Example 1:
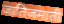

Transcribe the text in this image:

जातिजमाती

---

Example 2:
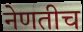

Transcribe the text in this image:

नेणतीच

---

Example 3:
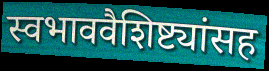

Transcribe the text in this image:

स्वभाववैशिष्ट्यांसह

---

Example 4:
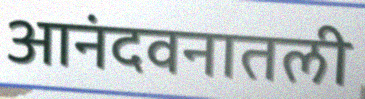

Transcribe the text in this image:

आनंदवनातली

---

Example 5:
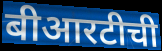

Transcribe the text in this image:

बीआरटीची